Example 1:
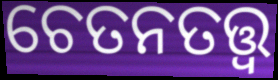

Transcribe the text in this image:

ଚେତନତତ୍ତ୍ୱ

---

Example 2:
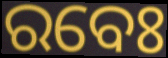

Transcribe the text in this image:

ରବେଃ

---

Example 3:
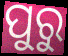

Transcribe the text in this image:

ପୁରୁ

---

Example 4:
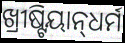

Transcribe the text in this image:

ଖ୍ରୀଷ୍ଟିୟାନ୍‌ଧର୍ମ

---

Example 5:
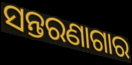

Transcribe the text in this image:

ସନ୍ତରଣାଗାର